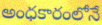
అంధకారంలోనే